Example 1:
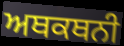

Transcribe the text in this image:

ਅਥਕਥਨੀ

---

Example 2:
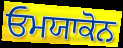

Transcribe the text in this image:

ਓਮਯਾਕੋਨ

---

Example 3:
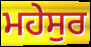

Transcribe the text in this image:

ਮਹੇਸੁਰ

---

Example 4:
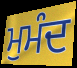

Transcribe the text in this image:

ਮੁਮੰਦ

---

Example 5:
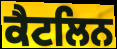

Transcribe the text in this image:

ਕੈਟਲਿਨ